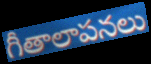
గీతాలాపనలు